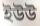
ইউউ